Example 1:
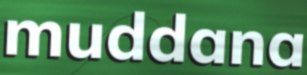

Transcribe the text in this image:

muddana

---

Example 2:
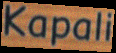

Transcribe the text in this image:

Kapali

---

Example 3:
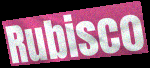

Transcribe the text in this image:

Rubisco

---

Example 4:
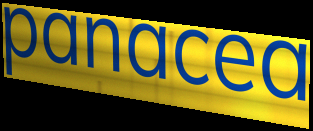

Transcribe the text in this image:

panacea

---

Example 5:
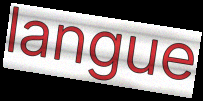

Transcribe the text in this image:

langue